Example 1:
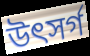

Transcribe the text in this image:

উৎসর্গ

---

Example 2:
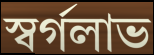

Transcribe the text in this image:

স্বর্গলাভ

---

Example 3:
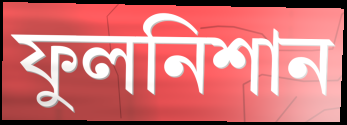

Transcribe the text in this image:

ফুলনিশান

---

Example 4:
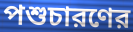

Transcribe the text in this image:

পশুচারণের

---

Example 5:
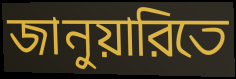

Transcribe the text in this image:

জানুয়ারিতে